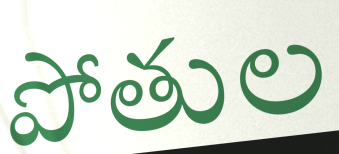
పోతుల